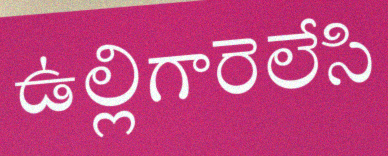
ఉల్లిగారెలేసి